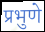
प्रभुणे